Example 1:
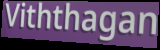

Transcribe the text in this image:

Viththagan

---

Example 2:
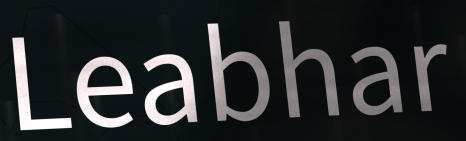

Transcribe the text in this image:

Leabhar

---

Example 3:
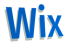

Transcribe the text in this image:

Wix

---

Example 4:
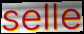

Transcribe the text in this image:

selle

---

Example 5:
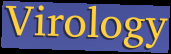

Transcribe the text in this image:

Virology